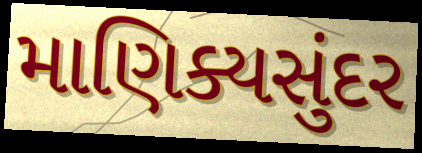
માણિક્યસુંદર